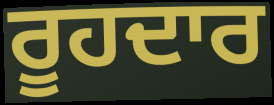
ਰੂਹਦਾਰ